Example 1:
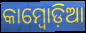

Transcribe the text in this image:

କାମ୍ବୋଡ଼ିଆ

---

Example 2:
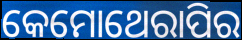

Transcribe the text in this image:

କେମୋଥେରାପିର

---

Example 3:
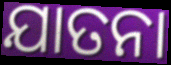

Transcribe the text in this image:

ଯାତନା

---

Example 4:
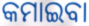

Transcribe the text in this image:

କମାଇବା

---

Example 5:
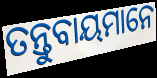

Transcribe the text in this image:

ତନ୍ତୁବାୟମାନେ